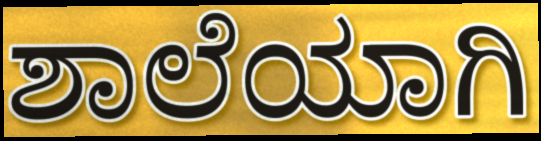
ಶಾಲೆಯಾಗಿ